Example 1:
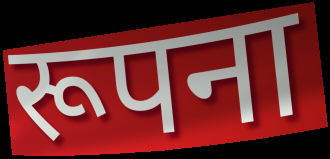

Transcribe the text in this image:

रूपना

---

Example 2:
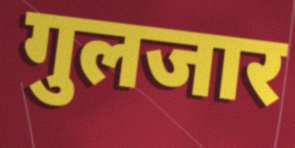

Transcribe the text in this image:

गुलजार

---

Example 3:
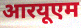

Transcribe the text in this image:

आरयूएम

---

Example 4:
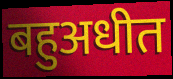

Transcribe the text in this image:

बहुअधीत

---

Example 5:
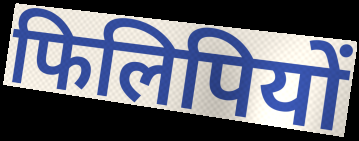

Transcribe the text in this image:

फिलिपियों